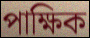
পাক্ষিক